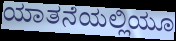
ಯಾತನೆಯಲ್ಲಿಯೂ